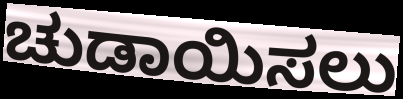
ಚುಡಾಯಿಸಲು